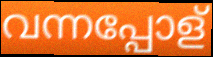
വന്നപ്പോള്